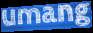
umang